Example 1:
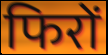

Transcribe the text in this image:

फिरों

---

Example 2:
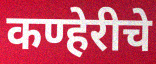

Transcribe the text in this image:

कण्हेरीचे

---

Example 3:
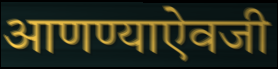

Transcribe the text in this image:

आणण्याऐवजी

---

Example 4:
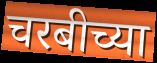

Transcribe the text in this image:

चरबीच्या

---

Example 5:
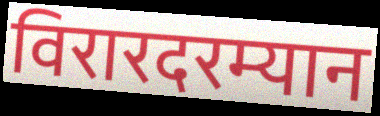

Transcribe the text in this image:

विरारदरम्यान